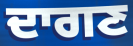
ਦਾਗਣ